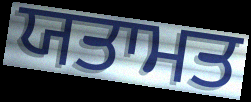
ਯਤਾਮਤ